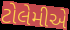
ટોલેમીએ